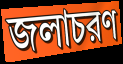
জলাচরণ